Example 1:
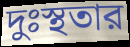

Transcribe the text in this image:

দুঃস্থতার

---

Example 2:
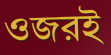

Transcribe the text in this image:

ওজরই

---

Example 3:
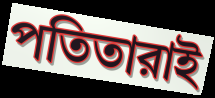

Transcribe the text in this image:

পতিতারাই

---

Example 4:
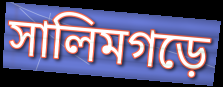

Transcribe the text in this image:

সালিমগড়ে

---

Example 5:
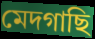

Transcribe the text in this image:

মেদগাছি